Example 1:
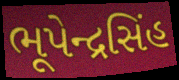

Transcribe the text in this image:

ભૂપેન્દ્રસિંહ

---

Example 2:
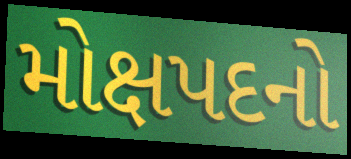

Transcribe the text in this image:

મોક્ષપદનો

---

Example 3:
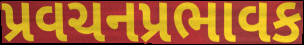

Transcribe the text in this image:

પ્રવચનપ્રભાવક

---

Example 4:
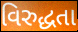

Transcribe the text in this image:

વિરુદ્ધતા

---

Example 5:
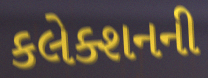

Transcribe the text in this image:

કલેક્શનની